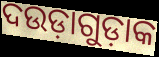
ଦଉଡ଼ାଗୁଡ଼ାକ